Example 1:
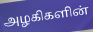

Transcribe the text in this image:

அழகிகளின்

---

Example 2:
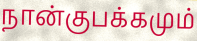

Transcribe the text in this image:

நான்குபக்கமும்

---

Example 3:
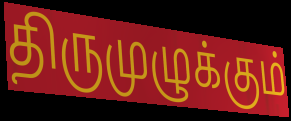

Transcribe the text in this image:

திருமுழுக்கும்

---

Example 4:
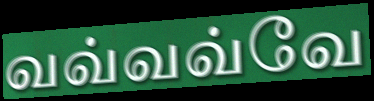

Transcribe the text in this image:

வவ்வவ்வே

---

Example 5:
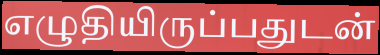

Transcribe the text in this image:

எழுதியிருப்பதுடன்